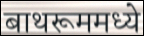
बाथरूममध्ये